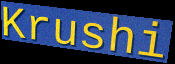
Krushi